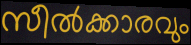
സീൽക്കാരവും